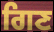
ਗਿਣ